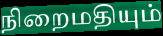
நிறைமதியும்